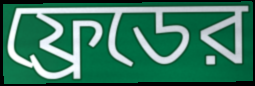
ফ্রেডের